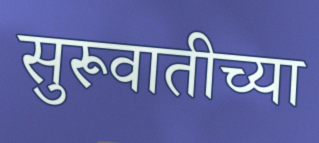
सुरूवातीच्या